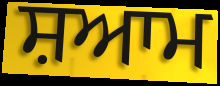
ਸ਼ਆਮ